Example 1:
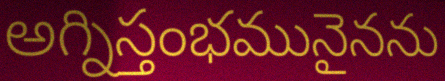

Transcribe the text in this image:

అగ్నిస్తంభమునైనను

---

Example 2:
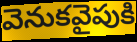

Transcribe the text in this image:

వెనుకవైపుకి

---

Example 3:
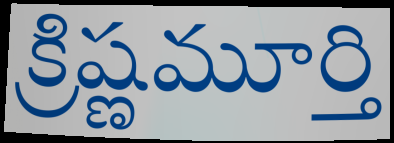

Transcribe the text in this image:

క్రిష్ణమూర్తి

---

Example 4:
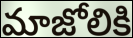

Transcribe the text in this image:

మాజోలికి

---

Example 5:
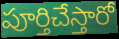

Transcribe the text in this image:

పూర్తిచేస్తారో